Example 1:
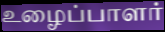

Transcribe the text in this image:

உழைப்பாளர்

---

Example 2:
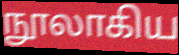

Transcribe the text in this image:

நூலாகிய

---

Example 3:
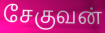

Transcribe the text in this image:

சேகுவன்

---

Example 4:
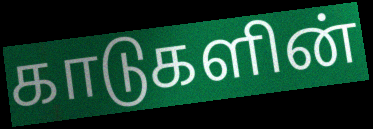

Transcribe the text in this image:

காடுகளின்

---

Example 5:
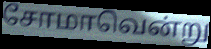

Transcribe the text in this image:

சோமாவென்று